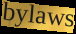
bylaws